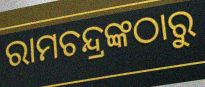
ରାମଚନ୍ଦ୍ରଙ୍କଠାରୁ